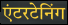
एंटरटेनिंग